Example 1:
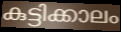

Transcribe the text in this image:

കുട്ടിക്കാലം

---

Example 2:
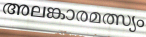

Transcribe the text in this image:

അലങ്കാരമത്സ്യം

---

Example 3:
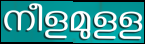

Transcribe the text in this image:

നീളമുളള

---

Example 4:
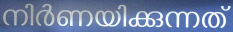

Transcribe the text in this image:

നിർണയിക്കുന്നത്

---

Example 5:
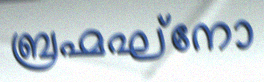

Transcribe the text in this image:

ബ്രഹ്മഘ്നോ